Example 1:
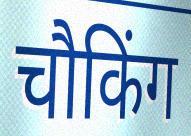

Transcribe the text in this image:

चौकिंग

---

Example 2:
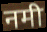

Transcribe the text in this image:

नमी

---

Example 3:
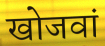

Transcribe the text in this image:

खोजवां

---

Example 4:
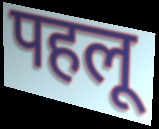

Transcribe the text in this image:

पहलू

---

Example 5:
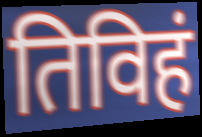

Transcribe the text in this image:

तिविहं